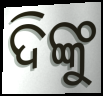
ଦିଙ୍କୁ